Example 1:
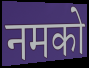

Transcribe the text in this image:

नमको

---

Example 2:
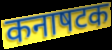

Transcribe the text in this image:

कनाषटक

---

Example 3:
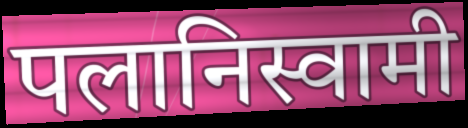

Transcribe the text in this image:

पलानिस्वामी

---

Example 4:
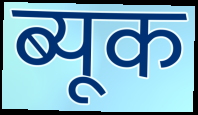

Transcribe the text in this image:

ब्यूक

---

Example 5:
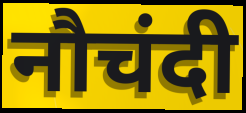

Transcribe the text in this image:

नौचंदी